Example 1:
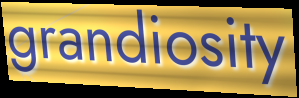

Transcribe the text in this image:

grandiosity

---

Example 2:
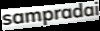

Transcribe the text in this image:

sampradai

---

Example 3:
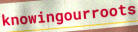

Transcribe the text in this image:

knowingourroots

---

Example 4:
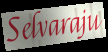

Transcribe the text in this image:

Selvaraju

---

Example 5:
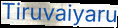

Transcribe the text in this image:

Tiruvaiyaru